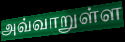
அவ்வாறுள்ள